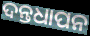
ଦନ୍ତଧାପନ